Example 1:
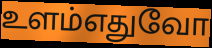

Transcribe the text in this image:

உளம்எதுவோ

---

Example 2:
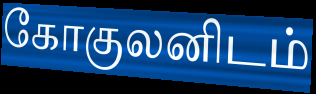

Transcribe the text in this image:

கோகுலனிடம்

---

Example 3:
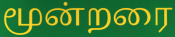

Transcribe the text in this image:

மூன்றரை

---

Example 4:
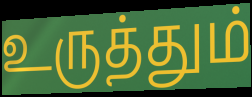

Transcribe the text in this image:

உருத்தும்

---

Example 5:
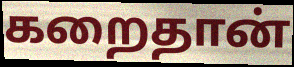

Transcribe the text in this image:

கறைதான்